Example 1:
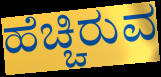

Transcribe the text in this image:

ಹೆಚ್ಚಿರುವ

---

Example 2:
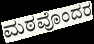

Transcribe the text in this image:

ಮಠವೊಂದರ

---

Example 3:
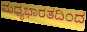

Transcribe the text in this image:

ಮಧ್ಯಭಾರತದಿಂದ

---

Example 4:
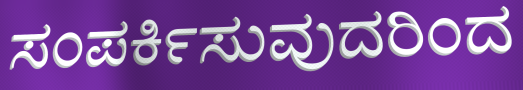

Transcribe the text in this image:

ಸಂಪರ್ಕಿಸುವುದರಿಂದ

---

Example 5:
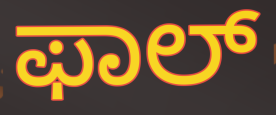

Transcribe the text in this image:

ಫಾಲ್